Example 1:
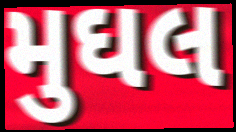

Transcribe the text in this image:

મુઘલ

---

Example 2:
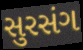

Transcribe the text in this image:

સુરસંગ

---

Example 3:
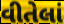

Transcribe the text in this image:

વીતેલાં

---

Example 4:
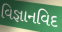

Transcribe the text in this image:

વિજ્ઞાનવિદ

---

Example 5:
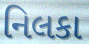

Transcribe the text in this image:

નિલકા